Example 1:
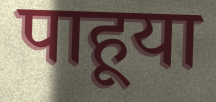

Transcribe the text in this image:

पाहूया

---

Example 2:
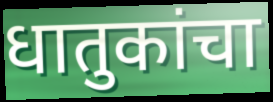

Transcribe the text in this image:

धातुकांचा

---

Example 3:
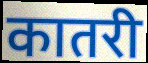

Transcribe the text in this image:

कातरी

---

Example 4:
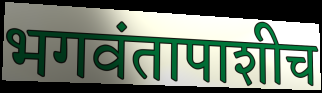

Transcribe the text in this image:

भगवंतापाशीच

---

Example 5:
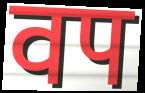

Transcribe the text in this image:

वप